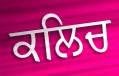
ਕਲਿਚ